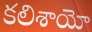
కలిశాయో